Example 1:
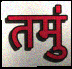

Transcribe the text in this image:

तमु॑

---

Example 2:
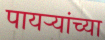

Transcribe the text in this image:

पायर्‍यांच्या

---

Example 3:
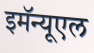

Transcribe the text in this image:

इमॅन्यूएल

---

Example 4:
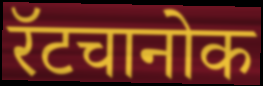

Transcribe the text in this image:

रॅटचानोक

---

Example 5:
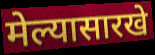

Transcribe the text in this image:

मेल्यासारखे